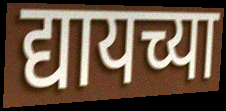
द्यायच्या